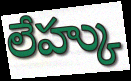
లేహ్కు